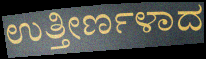
ಉತ್ತೀರ್ಣಳಾದ